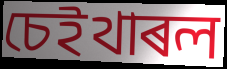
চেইথাৰল